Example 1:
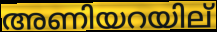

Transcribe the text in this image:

അണിയറയില്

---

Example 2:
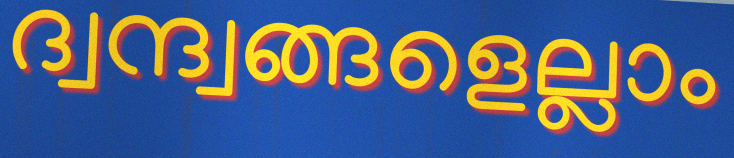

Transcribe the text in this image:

ദ്വന്ദ്വങ്ങളെല്ലാം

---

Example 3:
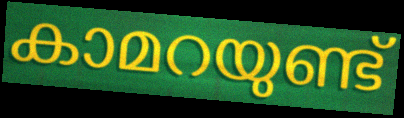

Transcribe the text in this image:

കാമറയുണ്ട്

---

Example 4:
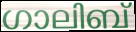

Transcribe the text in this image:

ഗാലിബ്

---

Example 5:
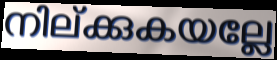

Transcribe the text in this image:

നില്ക്കുകയല്ലേ